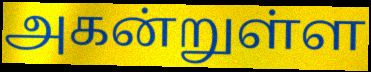
அகன்றுள்ள